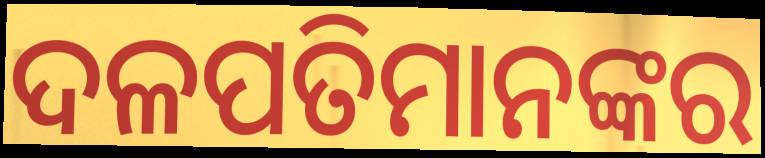
ଦଳପତିମାନଙ୍କର